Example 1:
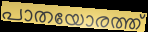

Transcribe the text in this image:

പാതയോരത്ത്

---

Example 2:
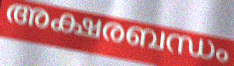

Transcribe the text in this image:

അക്ഷരബന്ധം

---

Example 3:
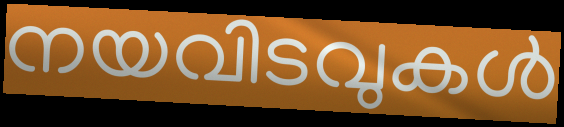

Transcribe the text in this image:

നയവിടവുകൾ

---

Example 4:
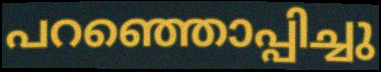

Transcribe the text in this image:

പറഞ്ഞൊപ്പിച്ചു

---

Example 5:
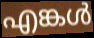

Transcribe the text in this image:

എങ്കൾ